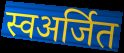
स्वअर्जित